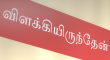
விளக்கியிருந்தேன்